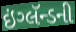
ઇંગ્લૅન્ડની